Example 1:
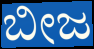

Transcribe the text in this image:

ಬೀಜ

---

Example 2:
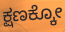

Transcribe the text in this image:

ಕ್ಷಣಕ್ಕೋ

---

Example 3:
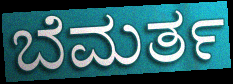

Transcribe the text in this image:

ಬೆಮರ್ತ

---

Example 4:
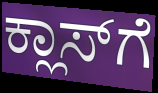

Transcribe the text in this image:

ಕ್ಲಾಸ್‍ಗೆ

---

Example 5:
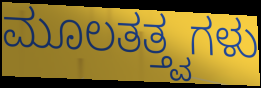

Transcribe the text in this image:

ಮೂಲತತ್ತ್ವಗಳು